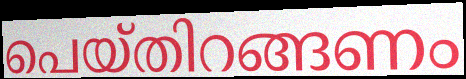
പെയ്തിറങ്ങണം